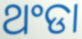
ଥଂଡା